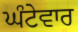
ਘੰਟੇਵਾਰ